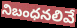
నిబంధనలివే